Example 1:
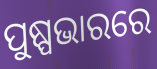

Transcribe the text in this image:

ପୁଷ୍ପଭାରରେ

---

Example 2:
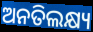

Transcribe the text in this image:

ଅନତିଲକ୍ଷ୍ୟ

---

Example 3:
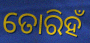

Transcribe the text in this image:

ତୋରିହଁ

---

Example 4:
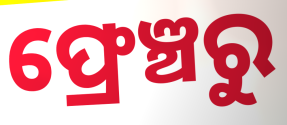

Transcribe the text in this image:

ଫ୍ରେଞ୍ଚରୁ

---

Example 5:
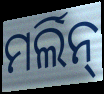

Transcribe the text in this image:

ମର୍ଲିନ୍